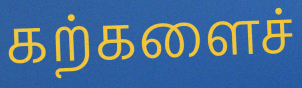
கற்களைச்